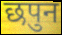
छपुन